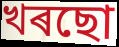
খৰছো